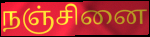
நஞ்சினை